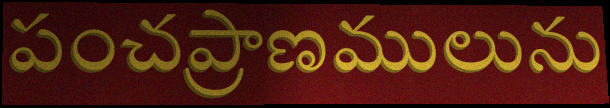
పంచప్రాణములును